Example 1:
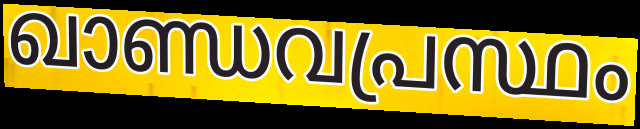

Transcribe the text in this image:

ഖാണ്ഡവപ്രസ്ഥം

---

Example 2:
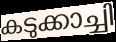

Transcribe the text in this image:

കടുക്കാച്ചി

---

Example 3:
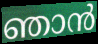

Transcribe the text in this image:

ഞാൻ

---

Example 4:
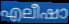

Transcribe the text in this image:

എലീഷാ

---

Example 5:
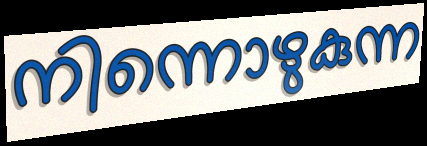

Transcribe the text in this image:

നിന്നൊഴുകുന്ന